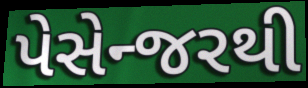
પેસેન્જરથી